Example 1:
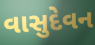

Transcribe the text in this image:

વાસુદેવન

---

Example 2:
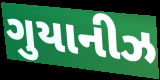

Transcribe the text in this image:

ગુયાનીઝ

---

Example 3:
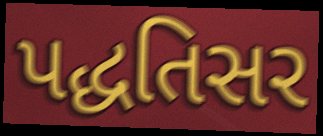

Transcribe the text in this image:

પદ્ધતિસર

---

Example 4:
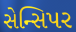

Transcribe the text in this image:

સેન્સિપર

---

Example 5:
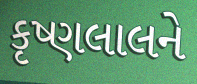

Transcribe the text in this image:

કૃષ્ણલાલને